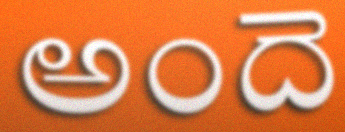
అందె